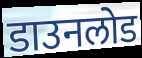
डाउनलोड